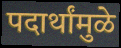
पदार्थांमुळे